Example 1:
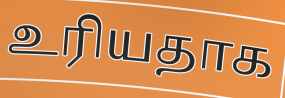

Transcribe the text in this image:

உரியதாக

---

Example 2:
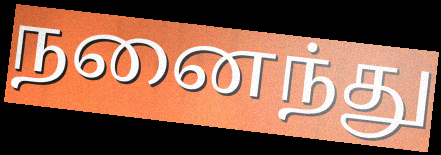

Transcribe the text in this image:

நனைந்து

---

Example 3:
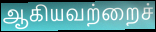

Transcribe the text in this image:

ஆகியவற்றைச்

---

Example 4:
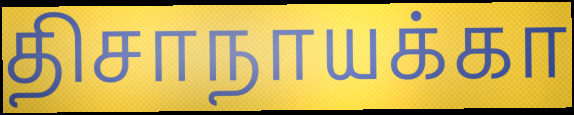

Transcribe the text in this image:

திசாநாயக்கா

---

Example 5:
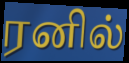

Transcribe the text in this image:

ரனில்